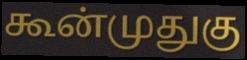
கூன்முதுகு